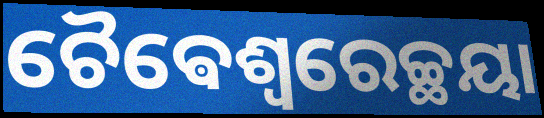
ଚୈଵେଶ୍ଵରେଚ୍ଛୟା